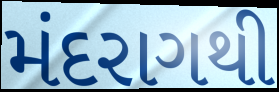
મંદરાગથી